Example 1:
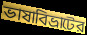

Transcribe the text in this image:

ভাষাবিভ্রাটের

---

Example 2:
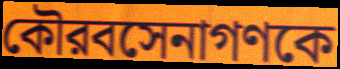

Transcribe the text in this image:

কৌরবসেনাগণকে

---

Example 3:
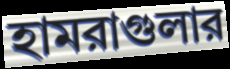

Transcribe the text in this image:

হামরাগুলার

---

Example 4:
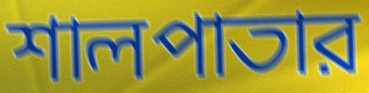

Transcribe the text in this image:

শালপাতার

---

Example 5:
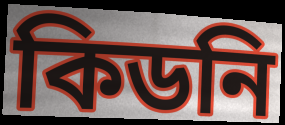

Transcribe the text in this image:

কিডনি